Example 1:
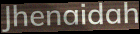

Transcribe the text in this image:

Jhenaidah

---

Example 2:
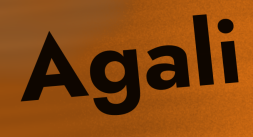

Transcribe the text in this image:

Agali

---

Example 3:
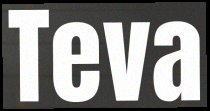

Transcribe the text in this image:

Teva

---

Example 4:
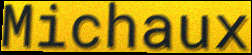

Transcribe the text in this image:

Michaux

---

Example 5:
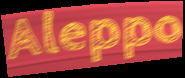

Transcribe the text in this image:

Aleppo